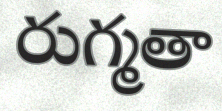
రుగ్మతా